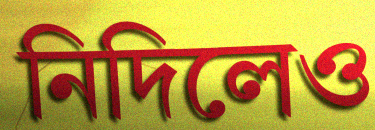
নিদিলেও